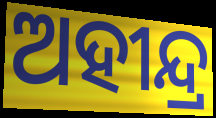
ଅହୀନ୍ଦ୍ର